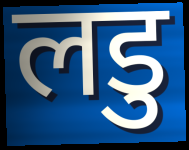
लडु